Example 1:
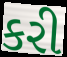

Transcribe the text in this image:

કરી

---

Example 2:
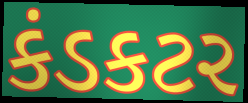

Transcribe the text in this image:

કંડકટર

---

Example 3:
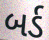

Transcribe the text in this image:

બર્ડ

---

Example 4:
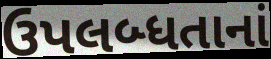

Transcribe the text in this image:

ઉપલબ્ધતાનાં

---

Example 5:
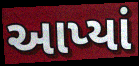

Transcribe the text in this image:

આપ્યાં